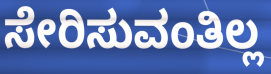
ಸೇರಿಸುವಂತಿಲ್ಲ